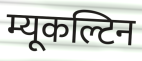
म्यूकल्टिन